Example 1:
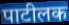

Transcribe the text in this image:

पाटीलक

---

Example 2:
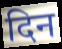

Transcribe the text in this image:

दिन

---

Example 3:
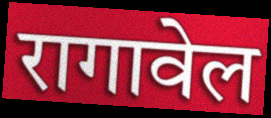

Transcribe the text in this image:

रागावेल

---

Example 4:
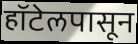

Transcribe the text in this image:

हॉटेलपासून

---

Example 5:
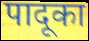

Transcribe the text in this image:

पादूका